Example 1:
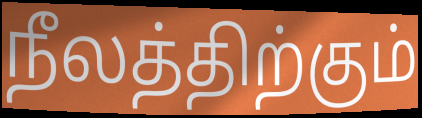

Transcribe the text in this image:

நீலத்திற்கும்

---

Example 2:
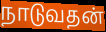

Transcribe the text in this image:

நாடுவதன்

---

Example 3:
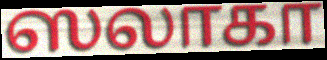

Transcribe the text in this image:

ஸலாகா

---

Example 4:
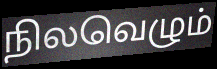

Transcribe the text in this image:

நிலவெழும்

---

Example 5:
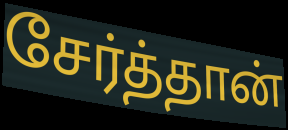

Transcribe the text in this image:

சேர்த்தான்